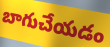
బాగుచేయడం